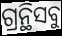
ଗ୍ରନ୍ଥିସବୁ